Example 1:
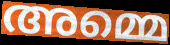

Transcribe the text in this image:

അമ്മെ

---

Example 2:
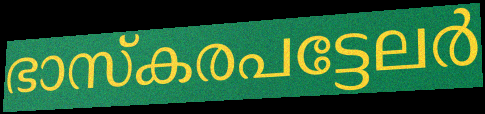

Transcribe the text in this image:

ഭാസ്കരപട്ടേലർ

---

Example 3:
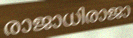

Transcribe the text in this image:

രാജാധിരാജാ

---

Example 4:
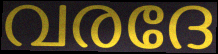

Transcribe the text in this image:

വരദേ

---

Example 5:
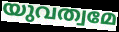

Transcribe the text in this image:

യുവത്വമേ